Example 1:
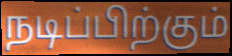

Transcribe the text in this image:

நடிப்பிற்கும்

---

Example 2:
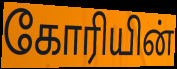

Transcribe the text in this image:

கோரியின்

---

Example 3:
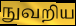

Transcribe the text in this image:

நுவறிய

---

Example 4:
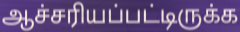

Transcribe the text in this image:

ஆச்சரியப்பட்டிருக்க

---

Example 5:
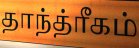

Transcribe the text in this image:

தாந்த்ரீகம்